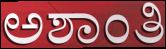
ಅಶಾಂತಿ